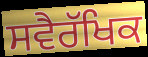
ਸਵੈਰੱਖਿਕ